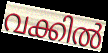
വക്കിൽ